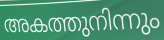
അകത്തുനിന്നും